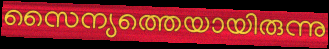
സൈന്യത്തെയായിരുന്നു